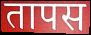
तापस